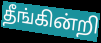
தீங்கின்றி